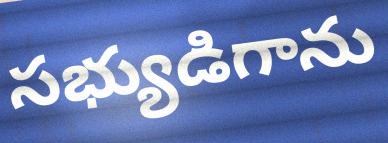
సభ్యుడిగాను